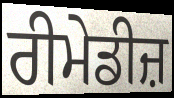
ਰੀਮੇਡੀਜ਼